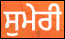
ਸੁਮੇਰੀ